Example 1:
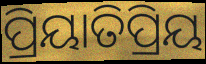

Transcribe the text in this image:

ପ୍ରିୟାତିପ୍ରିୟ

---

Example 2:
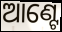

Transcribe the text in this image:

ଆଣ୍ଟେ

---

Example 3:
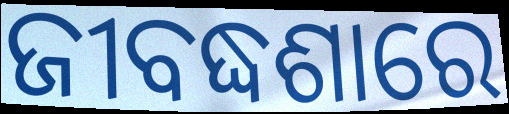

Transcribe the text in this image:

ଜୀବଦ୍ଧଶାରେ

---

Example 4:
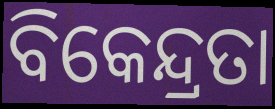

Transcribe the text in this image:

ବିକେନ୍ଦ୍ରତା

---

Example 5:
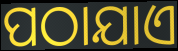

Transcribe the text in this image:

ପଠାଯାଏ